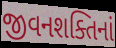
જીવનશક્તિનાં